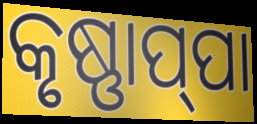
କୃଷ୍ଣାପ୍‌ପା